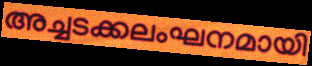
അച്ചടക്കലംഘനമായി